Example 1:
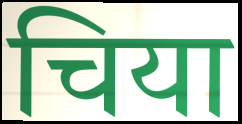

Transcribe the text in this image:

चिया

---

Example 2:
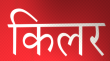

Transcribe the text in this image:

किलर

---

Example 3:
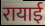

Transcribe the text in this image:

रायाई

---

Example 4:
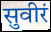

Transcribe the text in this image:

सुवीरं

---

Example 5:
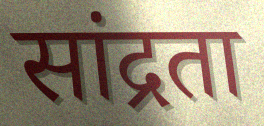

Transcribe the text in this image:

सांद्रता